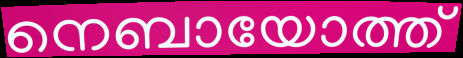
നെബായോത്ത്